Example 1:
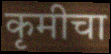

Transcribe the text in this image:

कृमीचा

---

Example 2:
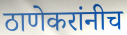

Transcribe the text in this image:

ठाणेकरांनीच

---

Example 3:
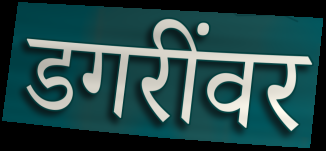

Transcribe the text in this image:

डगरींवर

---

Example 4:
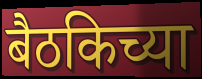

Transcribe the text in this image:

बैठकिच्या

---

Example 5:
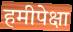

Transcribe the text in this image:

हमीपेक्षा